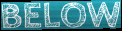
BELOW